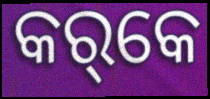
କର୍‌କେ